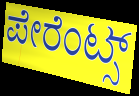
ಪೇರೆಂಟ್ಸ್